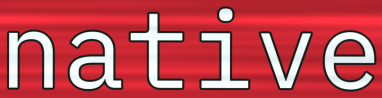
native